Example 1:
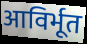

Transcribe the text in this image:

आविर्भूत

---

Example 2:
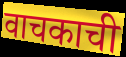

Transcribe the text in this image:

वाचकाची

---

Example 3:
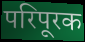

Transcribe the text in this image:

परिपूरक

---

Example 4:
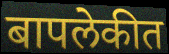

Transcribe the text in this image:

बापलेकीत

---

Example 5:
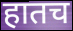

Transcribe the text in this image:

हातच